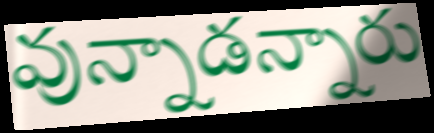
వున్నాడన్నారు